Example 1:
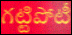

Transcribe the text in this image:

గట్టిపోటీ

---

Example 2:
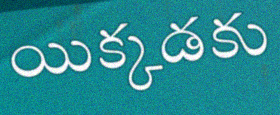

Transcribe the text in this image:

యిక్కడకు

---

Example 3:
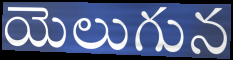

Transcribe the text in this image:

యెలుగున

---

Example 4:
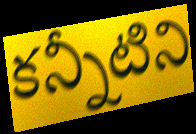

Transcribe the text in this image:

కన్నీటిని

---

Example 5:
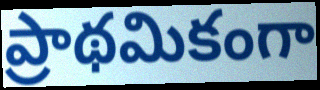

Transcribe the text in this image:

ప్రాథమికంగా